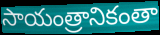
సాయంత్రానికంతా